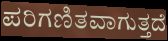
ಪರಿಗಣಿತವಾಗುತ್ತದೆ